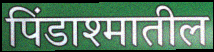
पिंडाश्मातील